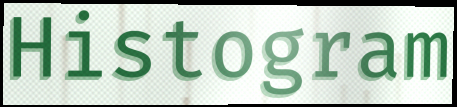
Histogram